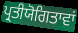
ਪ੍ਰਤੀਯੋਗਿਤਾਵਾਂ